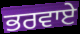
ਭਰਵਾਏ